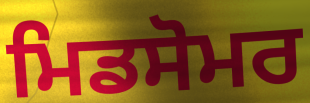
ਮਿਡਸੋਮਰ